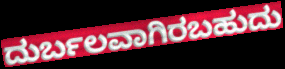
ದುರ್ಬಲವಾಗಿರಬಹುದು